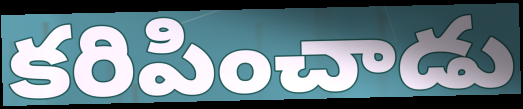
కరిపించాడు